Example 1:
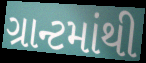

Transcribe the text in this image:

ગ્રાન્ટમાંથી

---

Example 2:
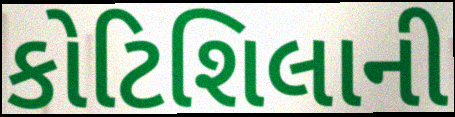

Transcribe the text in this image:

કોટિશિલાની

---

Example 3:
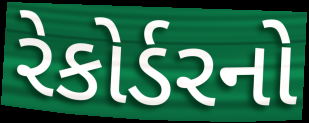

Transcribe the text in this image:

રેકોર્ડરનો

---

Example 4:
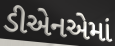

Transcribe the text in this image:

ડીએનએમાં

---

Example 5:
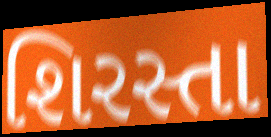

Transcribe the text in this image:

શિરસ્તા